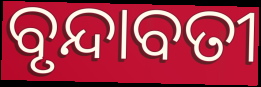
ବୃନ୍ଦାବତୀ